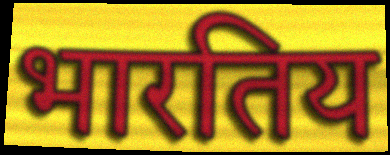
भारतिय